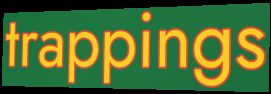
trappings